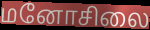
மனோசிலை